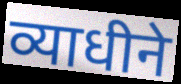
व्याधीने